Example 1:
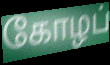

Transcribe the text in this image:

கோழப்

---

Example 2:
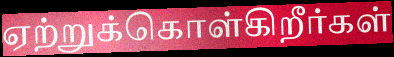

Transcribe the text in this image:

ஏற்றுக்கொள்கிறீர்கள்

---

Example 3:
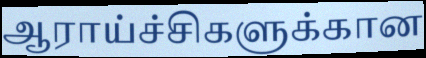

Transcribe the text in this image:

ஆராய்ச்சிகளுக்கான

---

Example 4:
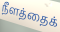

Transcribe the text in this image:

நீளத்தைக்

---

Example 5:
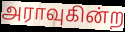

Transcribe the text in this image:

அராவுகின்ற